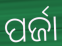
ପର୍ଜା